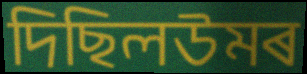
দিছিলউমৰ